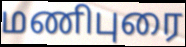
மணிபுரை